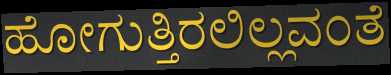
ಹೋಗುತ್ತಿರಲಿಲ್ಲವಂತೆ